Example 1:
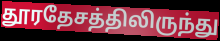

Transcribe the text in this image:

தூரதேசத்திலிருந்து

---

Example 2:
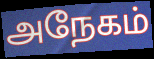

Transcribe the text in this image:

அநேகம்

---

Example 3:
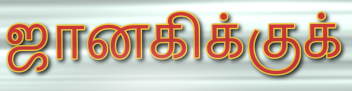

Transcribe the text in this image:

ஜானகிக்குக்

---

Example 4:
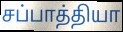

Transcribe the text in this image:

சப்பாத்தியா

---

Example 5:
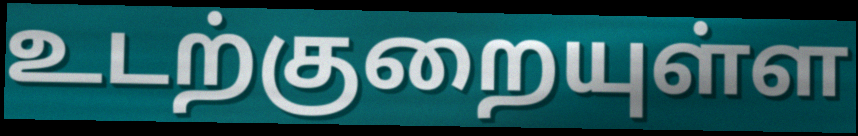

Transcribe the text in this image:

உடற்குறையுள்ள